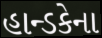
હાન્ડકેના